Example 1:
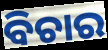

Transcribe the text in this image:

ବିଚାର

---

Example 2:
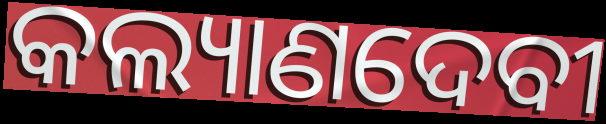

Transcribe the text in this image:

କଲ୍ୟାଣଦେବୀ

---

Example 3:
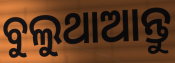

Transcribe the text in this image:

ବୁଲୁଥାଆନ୍ତୁ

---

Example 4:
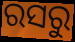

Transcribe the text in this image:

ରସରୁ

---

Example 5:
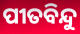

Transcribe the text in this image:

ପୀତବିନ୍ଦୁ